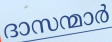
ദാസന്മാർ